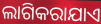
ଲାଗିକରାଯାଏ